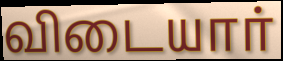
விடையார்